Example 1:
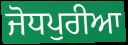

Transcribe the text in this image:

ਜੋਧਪੁਰੀਆ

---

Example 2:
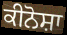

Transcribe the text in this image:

ਕੀਨੋਸ਼ਾ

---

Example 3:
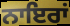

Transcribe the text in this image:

ਨਾਇਰਾਂ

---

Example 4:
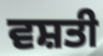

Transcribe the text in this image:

ਵਸ਼ਤੀ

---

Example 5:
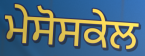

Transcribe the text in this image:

ਮੇਸੋਸਕੇਲ